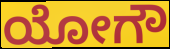
ಯೋಗೌ